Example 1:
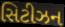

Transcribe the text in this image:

સિટીઝન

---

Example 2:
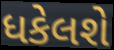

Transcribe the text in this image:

ધકેલશે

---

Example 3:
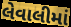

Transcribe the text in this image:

લેવાલીમાં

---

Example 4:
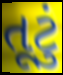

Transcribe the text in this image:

તૂટું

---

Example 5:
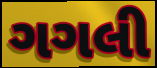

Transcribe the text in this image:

ગગલી